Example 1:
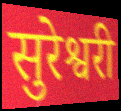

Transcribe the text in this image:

सुरेश्वरी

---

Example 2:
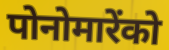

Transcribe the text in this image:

पोनोमारेंको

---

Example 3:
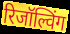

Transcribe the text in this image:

रिजॉल्विंग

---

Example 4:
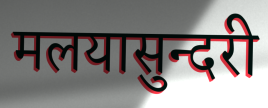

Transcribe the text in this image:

मलयासुन्दरी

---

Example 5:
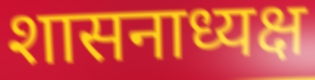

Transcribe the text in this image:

शासनाध्यक्ष